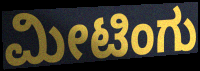
ಮೀಟಿಂಗು